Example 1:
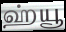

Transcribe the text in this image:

ஹ்யூ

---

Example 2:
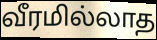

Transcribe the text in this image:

வீரமில்லாத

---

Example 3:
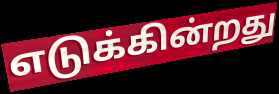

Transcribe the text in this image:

எடுக்கின்றது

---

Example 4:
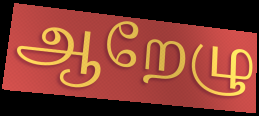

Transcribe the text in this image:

ஆறேழு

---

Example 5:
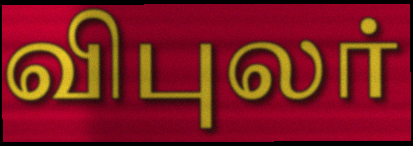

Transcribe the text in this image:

விபுலர்